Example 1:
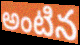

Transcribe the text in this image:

అంటిన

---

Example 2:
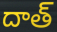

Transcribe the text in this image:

దాత్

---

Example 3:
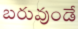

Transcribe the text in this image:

బరువుండే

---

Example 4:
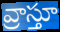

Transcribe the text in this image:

వ్రాస్తూ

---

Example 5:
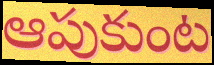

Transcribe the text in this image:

ఆపుకుంట